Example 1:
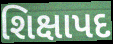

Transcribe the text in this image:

શિક્ષાપદ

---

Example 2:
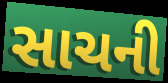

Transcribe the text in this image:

સાચની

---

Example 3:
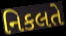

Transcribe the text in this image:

નિકલતે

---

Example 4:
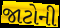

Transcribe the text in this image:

જાટોની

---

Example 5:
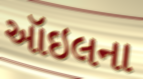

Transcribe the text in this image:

ઑઇલના